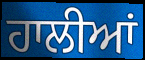
ਹਾਲੀਆਂ